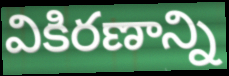
వికిరణాన్ని